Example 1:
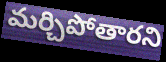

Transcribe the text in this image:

మర్చిపోతారని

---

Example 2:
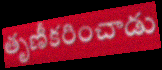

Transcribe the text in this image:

తృణీకరించాడు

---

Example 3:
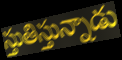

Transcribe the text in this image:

స్తుతిస్తున్నాడు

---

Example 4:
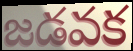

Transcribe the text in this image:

జడవక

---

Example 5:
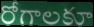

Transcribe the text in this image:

రోగాలకూ